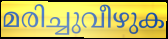
മരിച്ചുവീഴുക